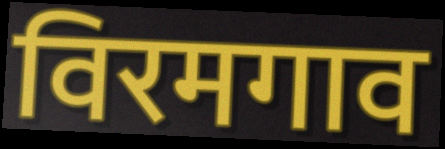
विरमगाव